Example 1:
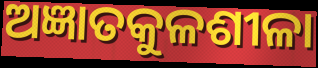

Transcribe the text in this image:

ଅଜ୍ଞାତକୁଳଶୀଳା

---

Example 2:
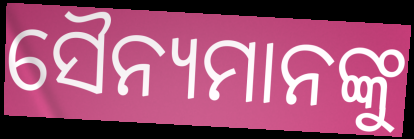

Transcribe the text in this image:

ସୈନ୍ୟମାନଙ୍କୁ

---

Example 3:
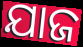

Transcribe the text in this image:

ଯାଜ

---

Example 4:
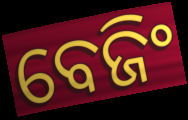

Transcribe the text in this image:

ବେଜିଂ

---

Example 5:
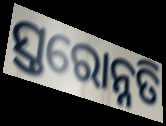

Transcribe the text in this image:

ସ୍ତରୋନ୍ନତି